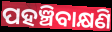
ପହଞ୍ଚିବାକ୍ଷଣି